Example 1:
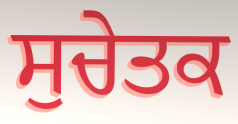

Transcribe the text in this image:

ਸੁਚੇਤਕ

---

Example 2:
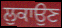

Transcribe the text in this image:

ਲੁਕਾਉਣ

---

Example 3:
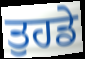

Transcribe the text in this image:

ਤੁਹਡੇ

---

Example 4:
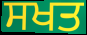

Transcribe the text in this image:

ਸਖਤ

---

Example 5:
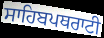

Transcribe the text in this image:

ਸਾਹਿਬਪਥਰਾਟੀ